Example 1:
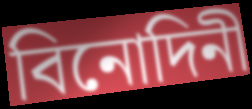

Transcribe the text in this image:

বিনোদিনী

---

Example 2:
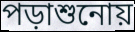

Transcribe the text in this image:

পড়াশুনোয়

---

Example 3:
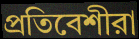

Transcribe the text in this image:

প্রতিবেশীরা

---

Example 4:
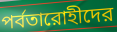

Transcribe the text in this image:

পর্বতারোহীদের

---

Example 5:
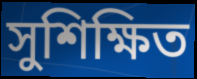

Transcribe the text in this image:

সুশিক্ষিত